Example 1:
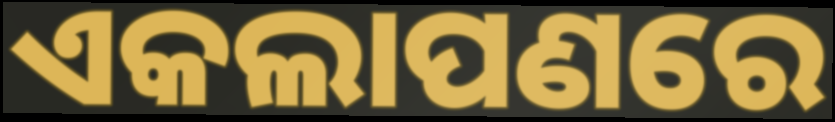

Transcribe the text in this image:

ଏକଲାପଣରେ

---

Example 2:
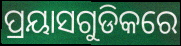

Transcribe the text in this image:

ପ୍ରୟାସଗୁଡିକରେ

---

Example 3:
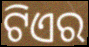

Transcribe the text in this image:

ଟିଏର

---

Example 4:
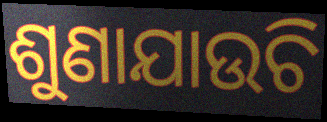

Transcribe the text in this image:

ଶୁଣାଯାଉଚି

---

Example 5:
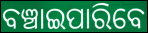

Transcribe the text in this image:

ବଞ୍ଚାଇପାରିବେ